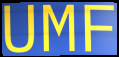
UMF